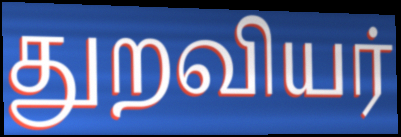
துறவியர்